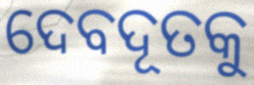
ଦେବଦୂତକୁ